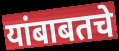
यांबाबतचे